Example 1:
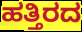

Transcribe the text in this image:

ಹತ್ತಿರದ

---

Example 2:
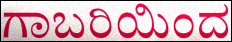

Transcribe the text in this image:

ಗಾಬರಿಯಿಂದ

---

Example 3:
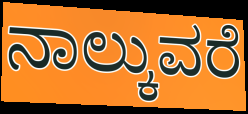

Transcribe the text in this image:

ನಾಲ್ಕುವರೆ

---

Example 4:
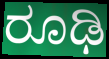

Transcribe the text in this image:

ರೂಢಿ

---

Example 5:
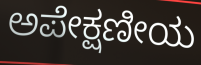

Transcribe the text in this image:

ಅಪೇಕ್ಷಣೀಯ